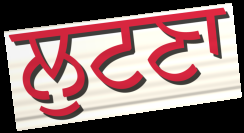
ਲੁਟਣਾ